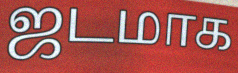
ஜடமாக